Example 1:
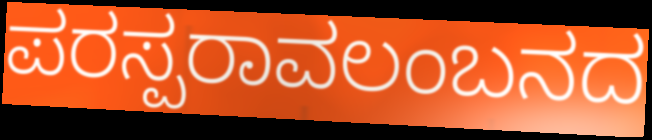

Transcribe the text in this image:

ಪರಸ್ಪರಾವಲಂಬನದ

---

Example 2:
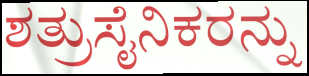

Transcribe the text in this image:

ಶತ್ರುಸೈನಿಕರನ್ನು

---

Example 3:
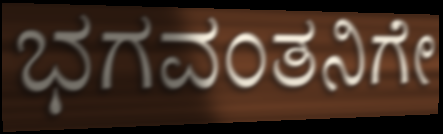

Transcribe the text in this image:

ಭಗವಂತನಿಗೇ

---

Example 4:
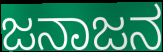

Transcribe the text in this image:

ಜನಾಜನ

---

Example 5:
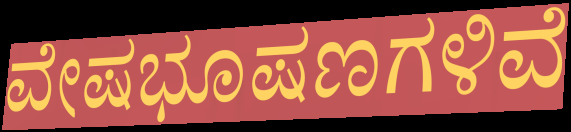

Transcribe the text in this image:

ವೇಷಭೂಷಣಗಳಿವೆ